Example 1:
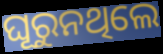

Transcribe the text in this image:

ଘୂରୁନଥିଲେ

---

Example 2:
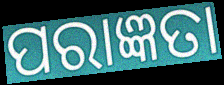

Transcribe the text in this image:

ପରାଜ୍ଞତା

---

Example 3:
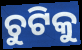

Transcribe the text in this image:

ଚୁଟିକୁ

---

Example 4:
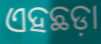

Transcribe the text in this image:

ଏହଛଡ଼ା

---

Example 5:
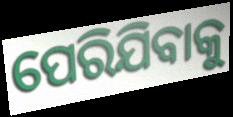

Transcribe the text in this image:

ପେରିଯିବାକୁ